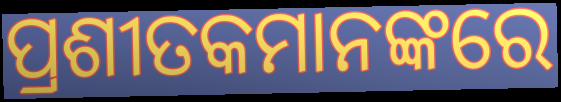
ପ୍ରଶୀତକମାନଙ୍କରେ